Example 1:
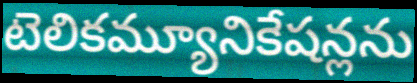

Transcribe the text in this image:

టెలికమ్యూనికేషన్లను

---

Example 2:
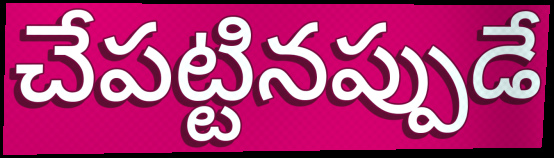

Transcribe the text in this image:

చేపట్టినప్పుడే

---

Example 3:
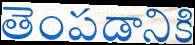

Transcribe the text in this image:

తెంపడానికి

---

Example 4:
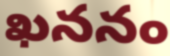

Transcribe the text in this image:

ఖననం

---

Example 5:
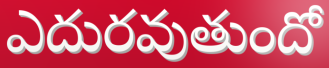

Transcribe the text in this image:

ఎదురవుతుందో